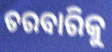
ତରବାରିକୁ